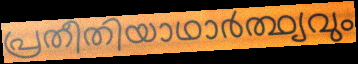
പ്രതീതിയാഥാർത്ഥ്യവും